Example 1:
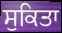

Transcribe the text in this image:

ਸੁਕਿਤਾ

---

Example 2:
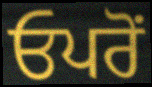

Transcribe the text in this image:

ਓਪਰੋਂ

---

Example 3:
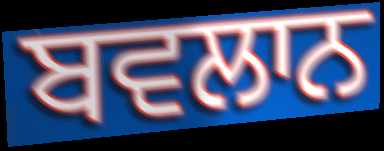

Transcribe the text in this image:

ਬਵਲਾਨ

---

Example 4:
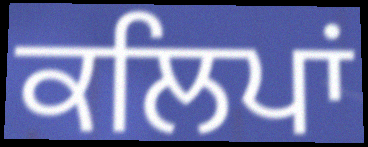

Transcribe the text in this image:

ਕਲਿਪਾਂ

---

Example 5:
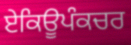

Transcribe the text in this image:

ਏਕਿਊਪੰਕਚਰ